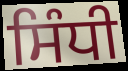
ਸਿੰਧੀ